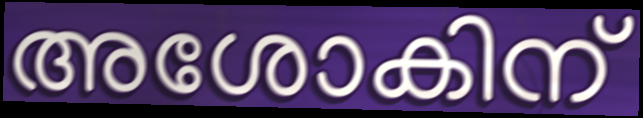
അശോകിന്